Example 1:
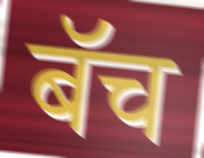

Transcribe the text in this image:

बॅच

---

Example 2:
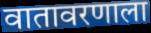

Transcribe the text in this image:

वातावरणाला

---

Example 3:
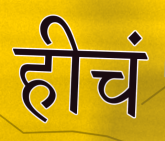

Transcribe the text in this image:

हीचं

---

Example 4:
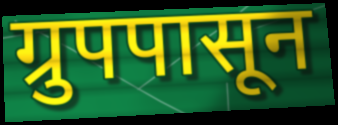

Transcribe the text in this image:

ग्रुपपासून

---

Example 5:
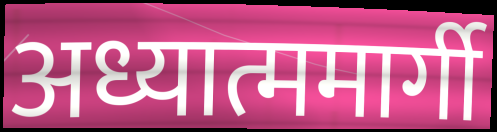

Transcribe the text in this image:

अध्यात्ममार्गी